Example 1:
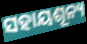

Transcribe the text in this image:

ସହାୟଶୂନ୍ୟ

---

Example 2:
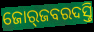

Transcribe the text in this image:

ଜୋର୍‍ଜବରଦସ୍ତି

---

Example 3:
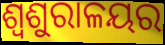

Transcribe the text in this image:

ଶ୍ୱଶୁରାଳୟର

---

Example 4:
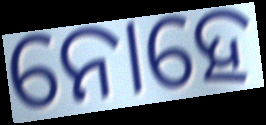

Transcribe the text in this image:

ନୋହେ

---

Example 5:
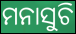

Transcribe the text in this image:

ମନାସୁଚି